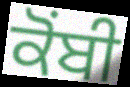
ਕੋਂਬੀ